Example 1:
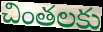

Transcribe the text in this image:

చింతలకు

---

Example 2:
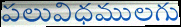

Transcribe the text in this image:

పలువిధములగు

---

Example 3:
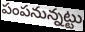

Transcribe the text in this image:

పంపనున్నట్టు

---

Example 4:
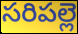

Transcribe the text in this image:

సరిపల్లె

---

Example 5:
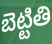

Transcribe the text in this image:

బెట్టితి